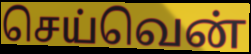
செய்வென்